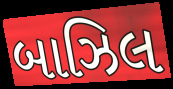
બાઝિલ